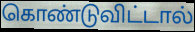
கொண்டுவிட்டால்